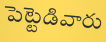
పెట్టెడివారు